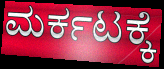
ಮರ್ಕಟಕ್ಕೆ